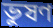
ভুষণ